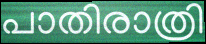
പാതിരാത്രി